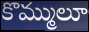
కొమ్ములూ